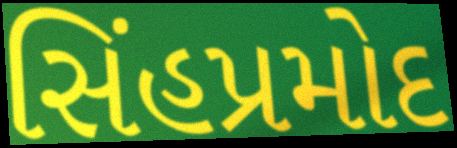
સિંહપ્રમોદ